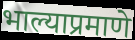
भाल्याप्रमाणे